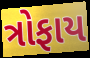
ત્રોફાય